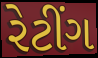
રેટીંગ